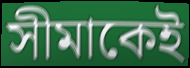
সীমাকেই